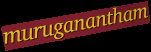
muruganantham